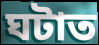
ঘটাত